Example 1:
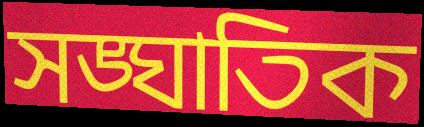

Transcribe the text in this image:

সঙ্ঘাতিক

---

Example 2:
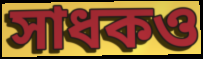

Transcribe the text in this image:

সাধকও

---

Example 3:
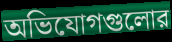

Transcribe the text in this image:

অভিযোগগুলোর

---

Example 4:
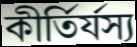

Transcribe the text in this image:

কীর্তির্যস্য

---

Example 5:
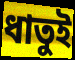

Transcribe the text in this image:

ধাতুই